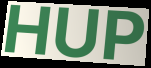
HUP